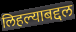
लिहल्याबद्दल